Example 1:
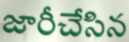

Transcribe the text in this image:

జారీచేసిన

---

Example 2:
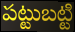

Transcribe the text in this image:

పట్టుబట్టి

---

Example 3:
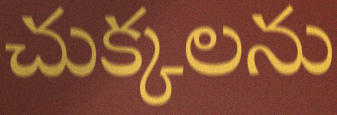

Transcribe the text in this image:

చుక్కలను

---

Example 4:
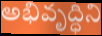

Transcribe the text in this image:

అభివృద్ధిని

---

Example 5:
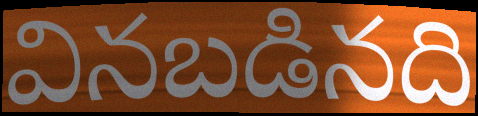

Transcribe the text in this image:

వినబడినది